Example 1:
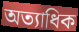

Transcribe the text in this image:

অত্যাধিক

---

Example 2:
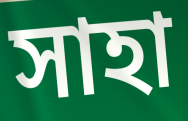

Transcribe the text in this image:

সাহা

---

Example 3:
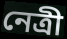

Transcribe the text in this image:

নেত্ৰী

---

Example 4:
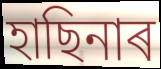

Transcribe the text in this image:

হাছিনাৰ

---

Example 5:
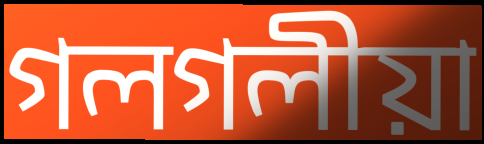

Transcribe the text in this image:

গলগলীয়া